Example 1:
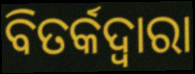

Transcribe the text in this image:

ବିତର୍କଦ୍ୱାରା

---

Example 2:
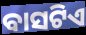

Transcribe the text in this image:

ବାସଟିଏ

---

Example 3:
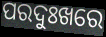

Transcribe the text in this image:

ପରଦୁଃଖରେ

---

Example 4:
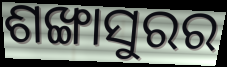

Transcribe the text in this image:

ଶଙ୍ଖାସୁରର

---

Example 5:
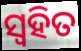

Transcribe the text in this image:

ସ୍ୱହିତ